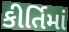
કીર્તિમાં